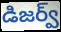
డిజర్వ్